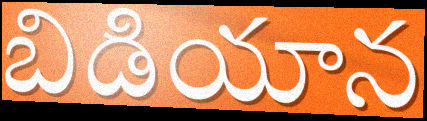
బిడియాన